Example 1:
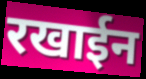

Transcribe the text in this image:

रखाईन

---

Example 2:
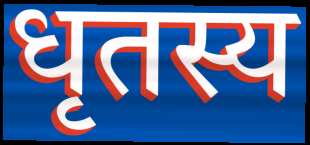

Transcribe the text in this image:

धृतस्य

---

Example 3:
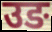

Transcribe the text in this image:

उङ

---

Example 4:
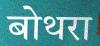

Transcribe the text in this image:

बोथरा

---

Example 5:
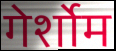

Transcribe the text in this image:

गेर्शोम